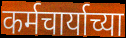
कर्मचार्याच्या